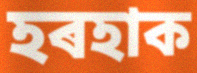
হৰহাক